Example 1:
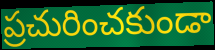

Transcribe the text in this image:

ప్రచురించకుండా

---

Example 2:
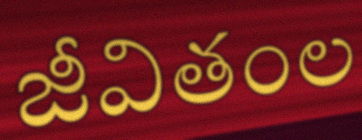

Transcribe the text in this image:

జీవితంల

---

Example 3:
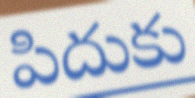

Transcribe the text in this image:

పిదుకు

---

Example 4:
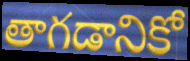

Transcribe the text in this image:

తాగడానికో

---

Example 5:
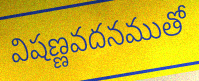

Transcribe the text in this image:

విషణ్ణవదనముతో